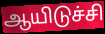
ஆயிடுச்சி